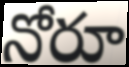
నోరూ